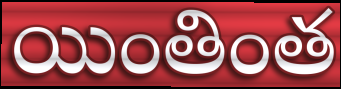
యింతింత